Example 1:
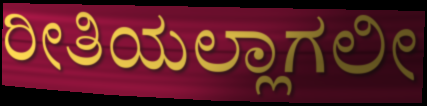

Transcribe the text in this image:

ರೀತಿಯಲ್ಲಾಗಲೀ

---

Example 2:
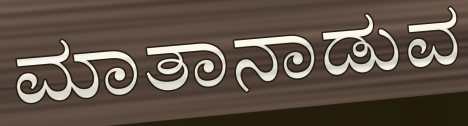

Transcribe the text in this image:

ಮಾತಾನಾಡುವ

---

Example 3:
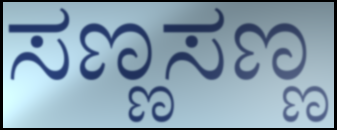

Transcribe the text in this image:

ಸಣ್ಣಸಣ್ಣ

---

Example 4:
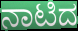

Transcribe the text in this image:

ನಾಟಿದ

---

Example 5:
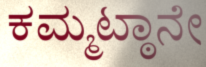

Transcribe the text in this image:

ಕಮ್ಮಟ್ಠಾನೇ